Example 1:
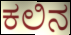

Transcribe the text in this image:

ಕಲಿನ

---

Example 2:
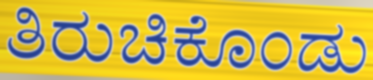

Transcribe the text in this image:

ತಿರುಚಿಕೊಂಡು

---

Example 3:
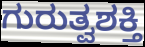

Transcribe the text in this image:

ಗುರುತ್ವಶಕ್ತಿ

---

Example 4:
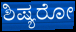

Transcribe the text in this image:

ಶಿಷ್ಯರೋ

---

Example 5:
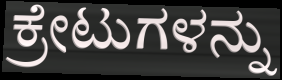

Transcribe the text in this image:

ಕ್ರೇಟುಗಳನ್ನು